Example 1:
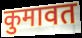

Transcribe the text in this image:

कुमावत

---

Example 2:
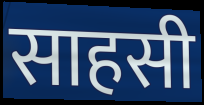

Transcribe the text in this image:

साहसी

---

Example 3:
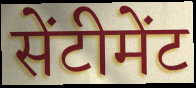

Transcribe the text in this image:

सेंटीमेंट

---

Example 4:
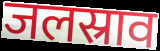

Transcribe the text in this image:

जलस्राव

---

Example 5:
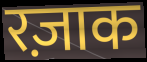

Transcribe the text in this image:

रज़ाक